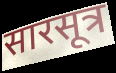
सारसूत्र